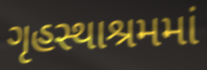
ગૃહસ્થાશ્રમમાં